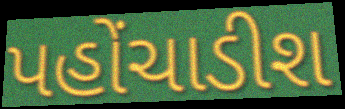
પહોંચાડીશ